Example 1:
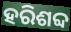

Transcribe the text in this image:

ହରିଶବ୍ଦ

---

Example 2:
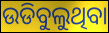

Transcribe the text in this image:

ଉଡିବୁଲୁଥିବା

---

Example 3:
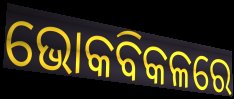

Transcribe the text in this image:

ଭୋକବିକଳରେ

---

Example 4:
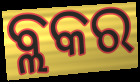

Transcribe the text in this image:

ବ୍ଲକର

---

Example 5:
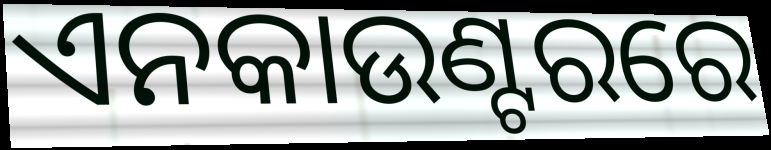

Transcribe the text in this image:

ଏନକାଉଣ୍ଟରରେ